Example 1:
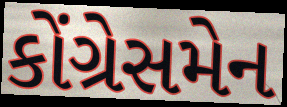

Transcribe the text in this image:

કોંગ્રેસમેન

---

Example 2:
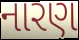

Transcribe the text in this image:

નારણ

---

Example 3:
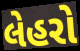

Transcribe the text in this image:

લેહરો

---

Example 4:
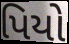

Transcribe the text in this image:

પિયો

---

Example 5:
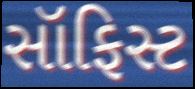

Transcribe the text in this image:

સૉફિસ્ટ